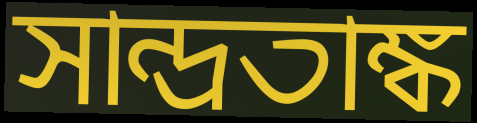
সান্দ্রতাঙ্ক